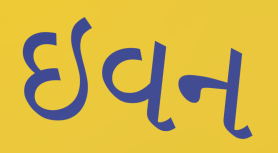
ઇવન